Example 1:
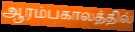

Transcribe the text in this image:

ஆரம்பகாலத்தில்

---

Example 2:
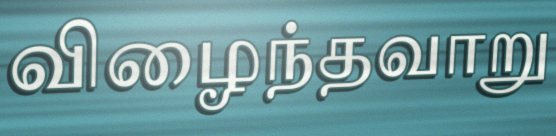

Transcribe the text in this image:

விழைந்தவாறு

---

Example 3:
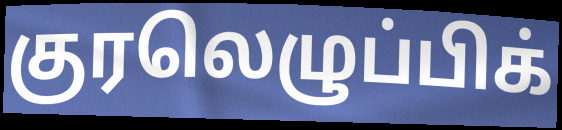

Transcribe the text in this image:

குரலெழுப்பிக்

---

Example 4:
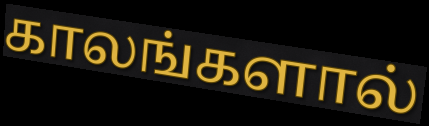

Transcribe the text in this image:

காலங்களால்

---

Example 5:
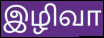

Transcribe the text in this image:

இழிவா